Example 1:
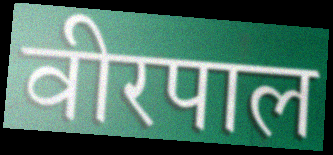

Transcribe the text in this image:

वीरपाल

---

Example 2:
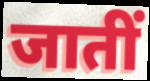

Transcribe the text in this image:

जातीं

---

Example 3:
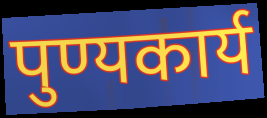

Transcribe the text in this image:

पुण्यकार्य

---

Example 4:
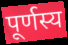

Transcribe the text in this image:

पूर्णस्य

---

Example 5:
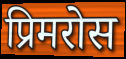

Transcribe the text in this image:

प्रिमरोस